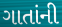
ગાતાંની